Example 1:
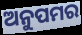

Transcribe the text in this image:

ଅନୁପମର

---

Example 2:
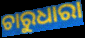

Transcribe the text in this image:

ଚାରୁଧାରା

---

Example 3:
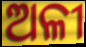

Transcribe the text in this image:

ଅଳୀ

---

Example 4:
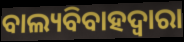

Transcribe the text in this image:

ବାଲ୍ୟବିବାହଦ୍ୱାରା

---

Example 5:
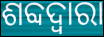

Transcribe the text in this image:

ଶବ୍ଦଦ୍ୱାରା